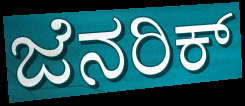
ಜೆನರಿಕ್